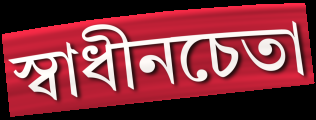
স্বাধীনচেতা